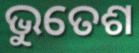
ଭୁତେଶ